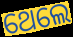
ଥେଲେ